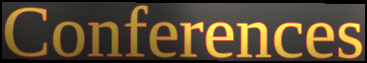
Conferences